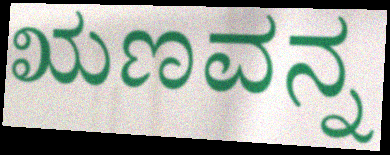
ಋಣವನ್ನ